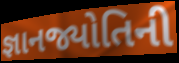
જ્ઞાનજ્યોતિની